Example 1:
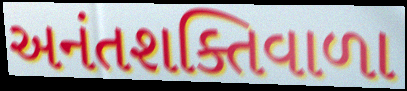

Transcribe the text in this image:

અનંતશક્તિવાળા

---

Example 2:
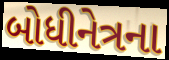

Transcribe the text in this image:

બોધીનેત્રના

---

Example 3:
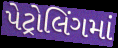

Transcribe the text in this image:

પેટ્રોલિંગમાં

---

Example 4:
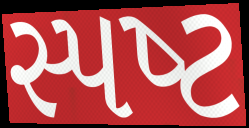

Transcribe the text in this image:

સ્પષ્‍ટ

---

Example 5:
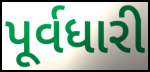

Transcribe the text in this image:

પૂર્વધારી